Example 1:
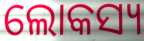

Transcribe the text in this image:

ଲୋକସ୍ୟ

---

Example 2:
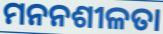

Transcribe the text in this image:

ମନନଶୀଳତା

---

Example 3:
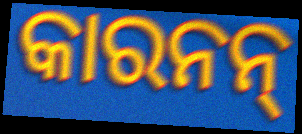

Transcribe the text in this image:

କାରନନ୍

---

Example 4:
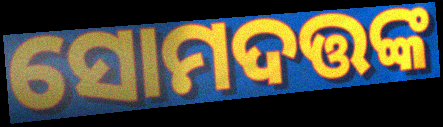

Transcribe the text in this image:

ସୋମଦତ୍ତଙ୍କ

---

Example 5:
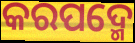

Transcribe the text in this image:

କରପଦ୍ମେ